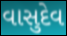
વાસુદેવ